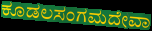
ಕೂಡಲಸಂಗಮದೇವಾ